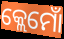
କ୍ଲେମୋଁ